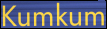
Kumkum